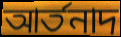
আর্তনাদ